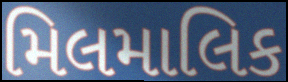
મિલમાલિક